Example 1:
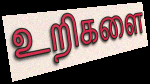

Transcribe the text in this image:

உறிகளை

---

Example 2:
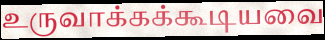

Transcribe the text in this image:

உருவாக்கக்கூடியவை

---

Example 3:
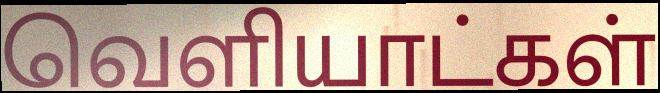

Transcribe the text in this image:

வெளியாட்கள்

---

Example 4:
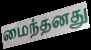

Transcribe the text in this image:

மைந்தனது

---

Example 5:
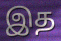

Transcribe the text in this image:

இத